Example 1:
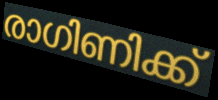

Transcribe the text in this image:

രാഗിണിക്ക്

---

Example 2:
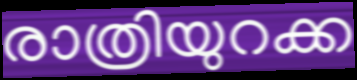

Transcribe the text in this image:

രാത്രിയുറക്ക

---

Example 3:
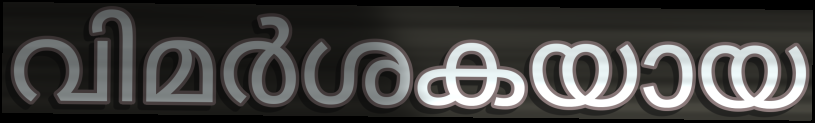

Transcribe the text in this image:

വിമർശകയായ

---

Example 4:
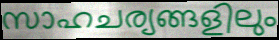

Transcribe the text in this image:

സാഹചര്യങ്ങളിലും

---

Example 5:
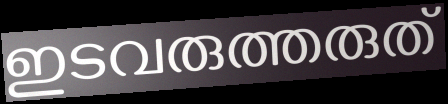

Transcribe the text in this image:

ഇടവരുത്തരുത്